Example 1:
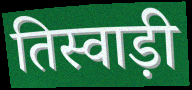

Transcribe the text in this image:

तिस्वाड़ी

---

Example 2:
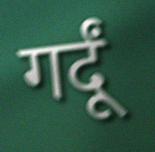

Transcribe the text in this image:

गर्दूं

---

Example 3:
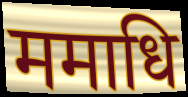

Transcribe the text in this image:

ममाधि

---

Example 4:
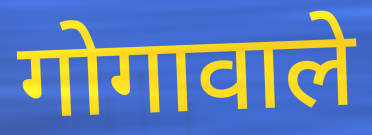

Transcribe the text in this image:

गोगावाले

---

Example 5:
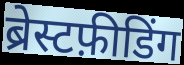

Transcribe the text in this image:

ब्रेस्टफ़ीडिंग